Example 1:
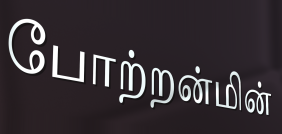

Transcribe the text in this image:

போற்றன்மின்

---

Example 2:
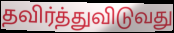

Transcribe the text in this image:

தவிர்த்துவிடுவது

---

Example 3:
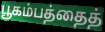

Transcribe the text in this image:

பூகம்பத்தைத்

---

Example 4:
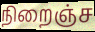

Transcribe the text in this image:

நிறைஞ்ச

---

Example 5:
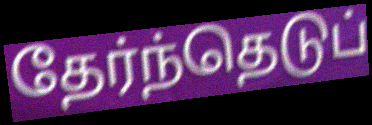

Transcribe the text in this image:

தேர்ந்தெடுப்